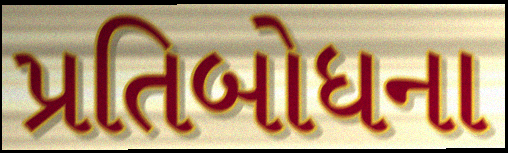
પ્રતિબોધના